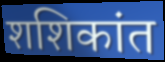
शशिकांत